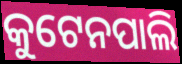
କୁଟେନପାଲି